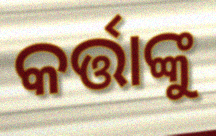
କର୍ତ୍ତାଙ୍କୁ